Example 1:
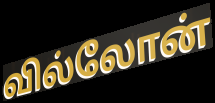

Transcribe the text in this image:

வில்லோன்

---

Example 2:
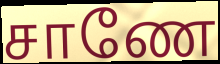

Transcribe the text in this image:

சாணே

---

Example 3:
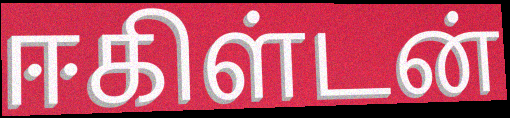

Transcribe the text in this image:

ஈகிள்டன்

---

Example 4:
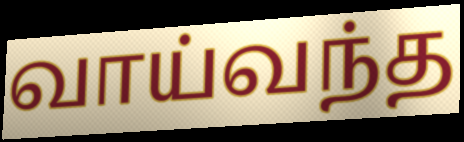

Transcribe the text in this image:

வாய்வந்த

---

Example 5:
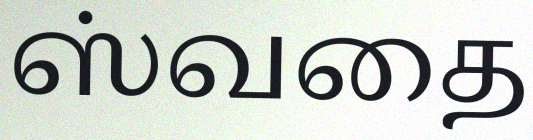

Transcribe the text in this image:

ஸ்வதை